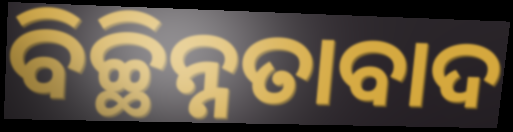
ବିଚ୍ଛିନ୍ନତାବାଦ